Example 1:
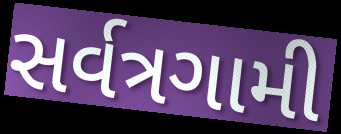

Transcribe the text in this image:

સર્વત્રગામી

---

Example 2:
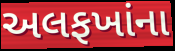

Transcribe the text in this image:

અલફખાંના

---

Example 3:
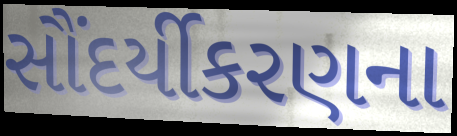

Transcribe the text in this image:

સૌંદર્યીકરણના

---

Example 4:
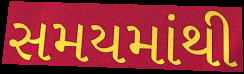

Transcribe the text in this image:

સમયમાંથી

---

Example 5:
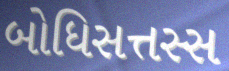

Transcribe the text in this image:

બોધિસત્તસ્સ